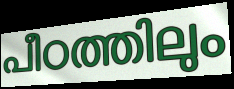
പീഠത്തിലും